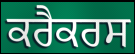
ਕਰੈਕਰਸ